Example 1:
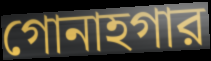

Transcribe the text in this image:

গোনাহগার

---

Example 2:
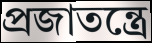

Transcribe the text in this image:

প্রজাতন্ত্রে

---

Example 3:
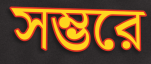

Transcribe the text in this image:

সম্ভরে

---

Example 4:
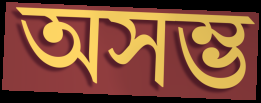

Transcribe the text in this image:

অসম্ভ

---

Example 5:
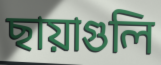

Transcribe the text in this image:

ছায়াগুলি